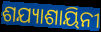
ଶଯ୍ୟାଶାୟିନୀ